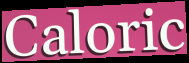
Caloric